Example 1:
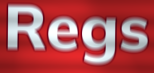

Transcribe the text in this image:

Regs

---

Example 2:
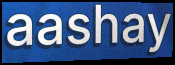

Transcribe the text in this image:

aashay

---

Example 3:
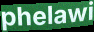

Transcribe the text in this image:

phelawi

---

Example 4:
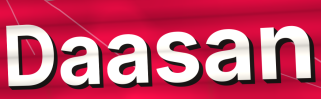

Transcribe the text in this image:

Daasan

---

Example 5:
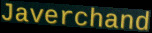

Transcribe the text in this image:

Javerchand